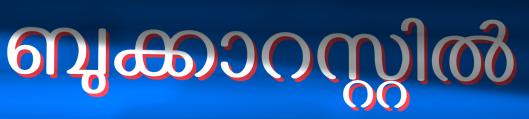
ബുക്കാറസ്റ്റിൽ